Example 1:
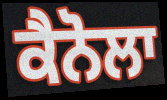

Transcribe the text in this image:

ਕੈਨੋਲਾ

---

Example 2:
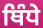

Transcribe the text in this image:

ਥਿੰਧੇ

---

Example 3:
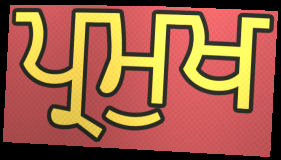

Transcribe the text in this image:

ਪ੍ਰਮੁਖ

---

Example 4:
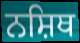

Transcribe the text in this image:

ਨਸ਼ਿਥ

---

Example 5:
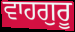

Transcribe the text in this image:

ਵਾਹਗੁਰੂ